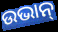
ଉଭାନ୍